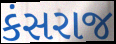
કંસરાજ